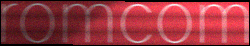
romcom